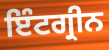
ਇੰਟਗ੍ਰੀਨ